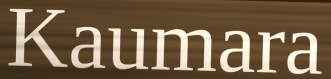
Kaumara